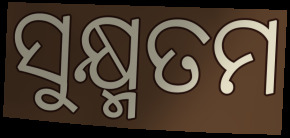
ସୁକ୍ଷ୍ମତମ